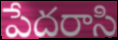
పేదరాసి